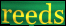
reeds